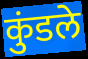
कुंडले